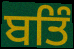
ਬਤਿੰ